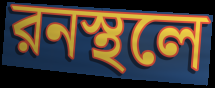
রনস্থলে